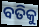
ବତିକୁ